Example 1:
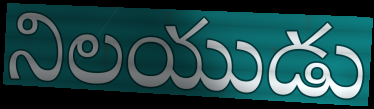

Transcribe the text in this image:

నిలయుడు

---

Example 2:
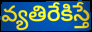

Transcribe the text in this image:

వ్యతిరేకిస్తే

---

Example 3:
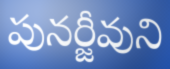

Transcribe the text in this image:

పునర్జీవుని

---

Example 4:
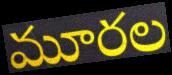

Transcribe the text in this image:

మూరల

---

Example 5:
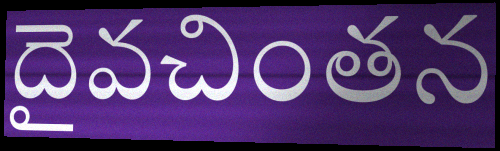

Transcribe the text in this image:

దైవచింతన